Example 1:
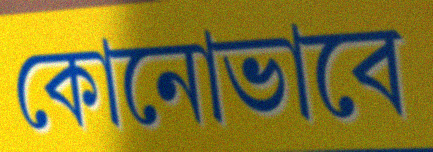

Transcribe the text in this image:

কোনোভাবে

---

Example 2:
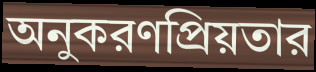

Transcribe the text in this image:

অনুকরণপ্রিয়তার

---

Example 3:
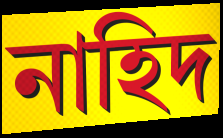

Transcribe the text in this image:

নাহিদ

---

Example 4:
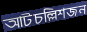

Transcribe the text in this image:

আটচল্লিশজন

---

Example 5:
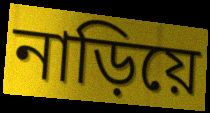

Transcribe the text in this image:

নাড়িয়ে